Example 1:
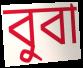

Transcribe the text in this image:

বুবা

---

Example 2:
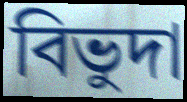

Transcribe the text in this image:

বিভুদা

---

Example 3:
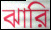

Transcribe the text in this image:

ঝারি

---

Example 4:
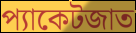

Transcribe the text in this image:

প্যাকেটজাত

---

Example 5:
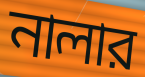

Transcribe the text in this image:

নালার